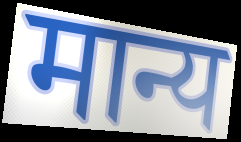
मान्य